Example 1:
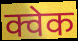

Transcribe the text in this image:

क्वेक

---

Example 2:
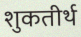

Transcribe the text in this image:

शुकतीर्थ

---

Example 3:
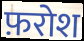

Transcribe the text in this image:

फ़रोश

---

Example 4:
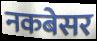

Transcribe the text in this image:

नकबेसर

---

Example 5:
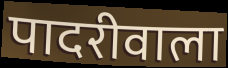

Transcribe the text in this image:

पादरीवाला